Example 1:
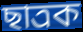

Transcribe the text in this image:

ছাত্ৰক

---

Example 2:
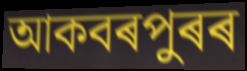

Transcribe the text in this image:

আকবৰপুৰৰ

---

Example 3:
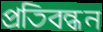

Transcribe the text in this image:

প্ৰতিবন্ধন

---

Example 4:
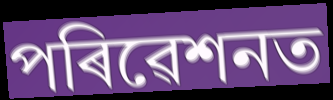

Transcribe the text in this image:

পৰিৱেশনত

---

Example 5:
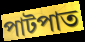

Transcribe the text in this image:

পাটপাত